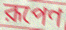
রূপেণ